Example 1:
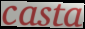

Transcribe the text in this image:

casta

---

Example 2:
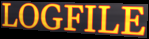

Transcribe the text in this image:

LOGFILE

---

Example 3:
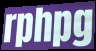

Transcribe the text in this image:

rphpg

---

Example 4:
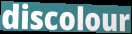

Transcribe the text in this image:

discolour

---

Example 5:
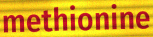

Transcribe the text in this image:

methionine